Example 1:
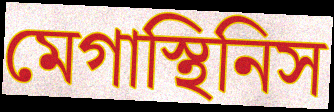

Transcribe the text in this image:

মেগাস্থিনিস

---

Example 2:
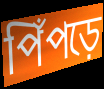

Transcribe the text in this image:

পিঁপড়ে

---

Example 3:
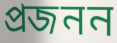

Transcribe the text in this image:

প্রজনন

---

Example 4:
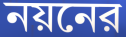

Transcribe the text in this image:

নয়নের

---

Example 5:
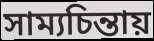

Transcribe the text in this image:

সাম্যচিন্তায়